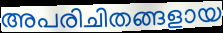
അപരിചിതങ്ങളായ